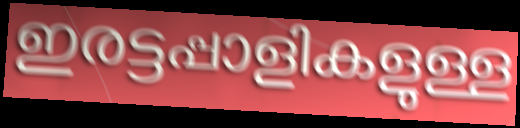
ഇരട്ടപ്പാളികളുള്ള